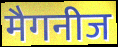
मैगनीज